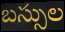
బస్సుల